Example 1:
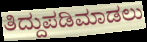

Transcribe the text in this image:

ತಿದ್ದುಪಡಿಮಾಡಲು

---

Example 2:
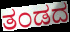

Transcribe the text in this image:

ತಂಡದ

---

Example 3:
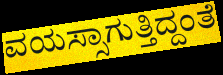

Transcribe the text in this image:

ವಯಸ್ಸಾಗುತ್ತಿದ್ದಂತೆ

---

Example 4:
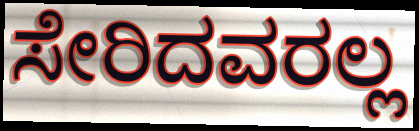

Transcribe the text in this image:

ಸೇರಿದವರಲ್ಲ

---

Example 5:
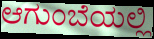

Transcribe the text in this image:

ಆಗುಂಬೆಯಲ್ಲಿ